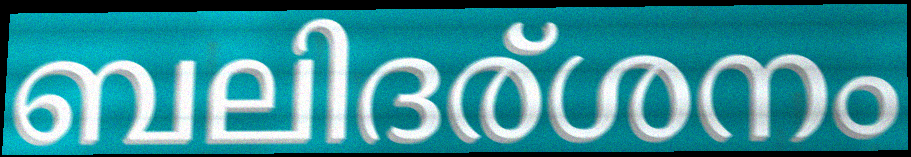
ബലിദര്ശനം